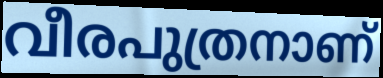
വീരപുത്രനാണ്